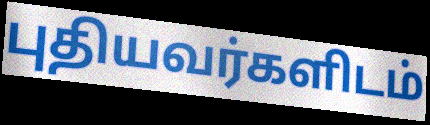
புதியவர்களிடம்